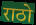
राठो